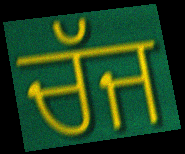
ਚੱਜ